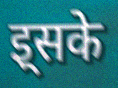
इ्सके